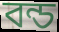
বন্ড